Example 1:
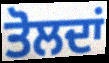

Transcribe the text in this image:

ਤੋਲਦਾਂ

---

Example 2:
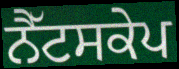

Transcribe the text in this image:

ਨੈੱਟਸਕੇਪ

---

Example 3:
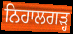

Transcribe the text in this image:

ਨਿਹਾਲਗੜ੍ਹ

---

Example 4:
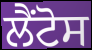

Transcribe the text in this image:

ਲੈਂਟੋਸ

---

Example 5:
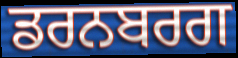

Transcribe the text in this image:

ਡਰਨਬਰਗ